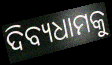
ଦିବ୍ୟଧାମକୁ